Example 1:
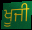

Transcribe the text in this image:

ਖੂਜੀ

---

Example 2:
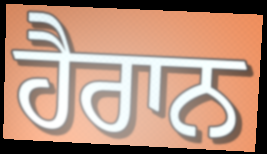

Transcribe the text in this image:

ਹੈਰਾਨ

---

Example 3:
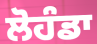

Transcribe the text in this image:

ਲੋਹੰਡਾ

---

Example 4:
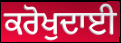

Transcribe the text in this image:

ਕਰੋਖੁਦਾਈ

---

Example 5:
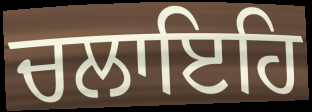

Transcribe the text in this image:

ਚਲਾਇਹਿ